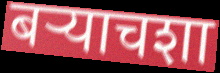
बऱ्याचशा